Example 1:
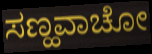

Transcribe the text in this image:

ಸಣ್ಹವಾಚೋ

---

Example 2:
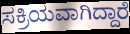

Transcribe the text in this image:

ಸಕ್ರಿಯವಾಗಿದ್ದಾರೆ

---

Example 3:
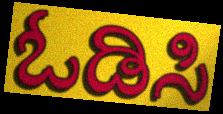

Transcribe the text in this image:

ಓಡಿಸಿ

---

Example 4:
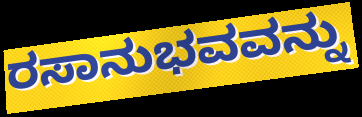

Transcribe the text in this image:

ರಸಾನುಭವವನ್ನು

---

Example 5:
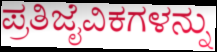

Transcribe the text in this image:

ಪ್ರತಿಜೈವಿಕಗಳನ್ನು